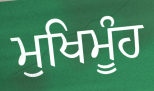
ਮੁਖਿਮੂੰਹ